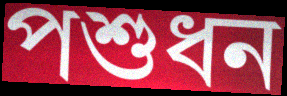
পশুধন